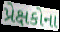
પ્રેક્ષકોના